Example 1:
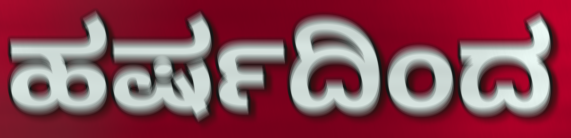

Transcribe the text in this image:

ಹರ್ಷದಿಂದ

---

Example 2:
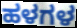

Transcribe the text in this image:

ಹಳಗಳ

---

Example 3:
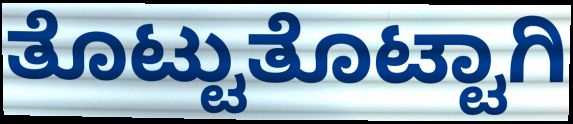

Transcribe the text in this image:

ತೊಟ್ಟುತೊಟ್ಟಾಗಿ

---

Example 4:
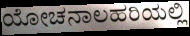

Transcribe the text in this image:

ಯೋಚನಾಲಹರಿಯಲ್ಲಿ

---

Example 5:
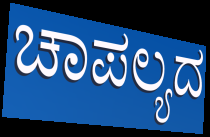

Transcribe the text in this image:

ಚಾಪಲ್ಯದ